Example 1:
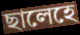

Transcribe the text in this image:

ছালেহে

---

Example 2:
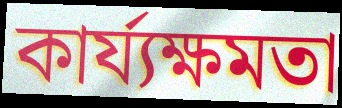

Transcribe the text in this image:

কাৰ্য্যক্ষমতা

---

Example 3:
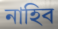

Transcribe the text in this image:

নাহিব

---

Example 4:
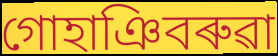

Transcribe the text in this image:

গোহাঞিবৰুৱা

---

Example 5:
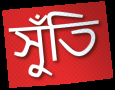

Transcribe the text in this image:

সুঁতি